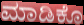
ಮಾಡಿಕೊ